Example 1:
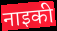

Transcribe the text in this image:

नाइकी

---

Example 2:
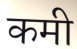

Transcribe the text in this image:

कमी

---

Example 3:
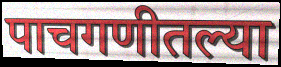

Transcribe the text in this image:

पाचगणीतल्या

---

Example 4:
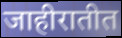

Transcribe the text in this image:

जाहीरातीत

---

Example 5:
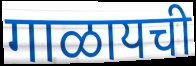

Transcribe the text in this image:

गाळायची